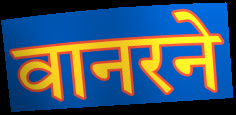
वानरने